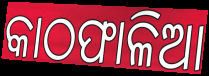
କାଠଫାଳିଆ